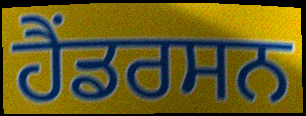
ਹੈਂਡਰਸਨ